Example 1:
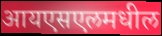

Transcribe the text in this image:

आयएसएलमधील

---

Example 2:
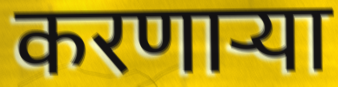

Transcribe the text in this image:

करणाऱ्या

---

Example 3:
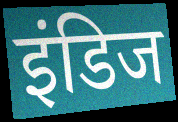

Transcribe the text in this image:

इंडिज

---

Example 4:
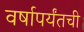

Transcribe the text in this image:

वर्षापर्यंतची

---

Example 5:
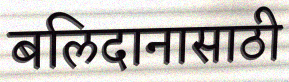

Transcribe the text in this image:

बलिदानासाठी